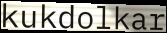
kukdolkar